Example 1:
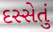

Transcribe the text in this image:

દસ્સેતું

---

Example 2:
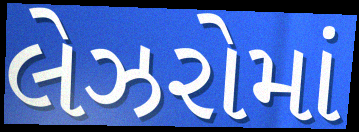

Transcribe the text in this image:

લેઝરોમાં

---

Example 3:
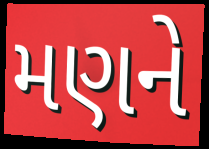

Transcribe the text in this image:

મણને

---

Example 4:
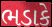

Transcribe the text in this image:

ભડાકે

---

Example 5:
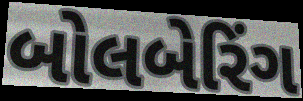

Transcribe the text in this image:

બોલબેરિંગ